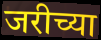
जरीच्या